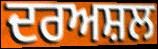
ਦਰਅਸ਼ਲ